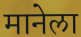
मानेला